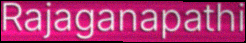
Rajaganapathi